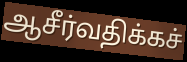
ஆசீர்வதிக்கச்